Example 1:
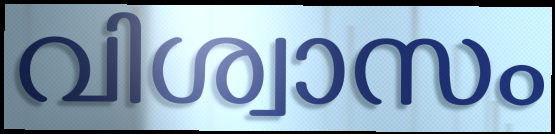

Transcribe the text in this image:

വിശ്വാസം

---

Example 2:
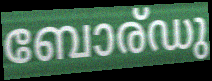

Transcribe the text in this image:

ബോര്ഡു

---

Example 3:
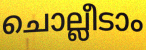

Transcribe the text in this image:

ചൊല്ലീടാം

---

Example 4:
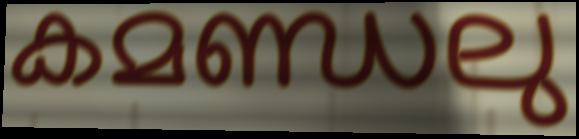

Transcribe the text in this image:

കമണ്ഡലു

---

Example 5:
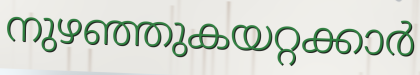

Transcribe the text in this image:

നുഴഞ്ഞുകയറ്റക്കാർ